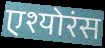
एश्योरंस